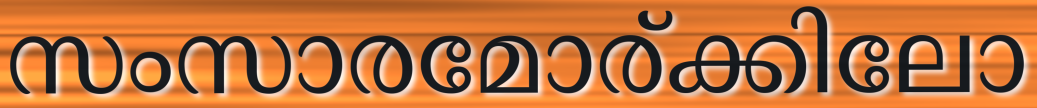
സംസാരമോര്ക്കിലോ